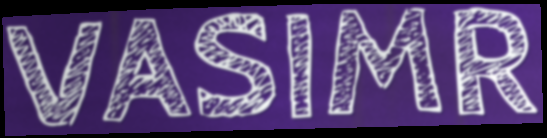
VASIMR